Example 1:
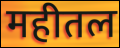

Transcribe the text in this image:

महीतल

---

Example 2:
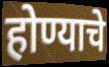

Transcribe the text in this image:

होण्याचे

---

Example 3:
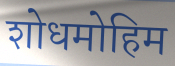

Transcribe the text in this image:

शोधमोहिम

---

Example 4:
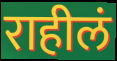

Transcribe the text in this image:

राहीलं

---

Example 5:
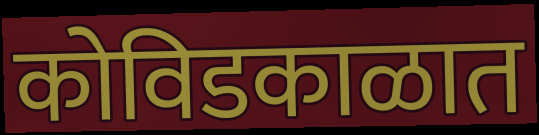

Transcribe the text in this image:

कोविडकाळात